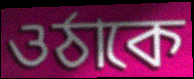
ওঠাকে